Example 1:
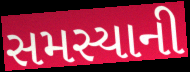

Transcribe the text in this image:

સમસ્યાની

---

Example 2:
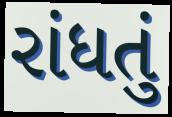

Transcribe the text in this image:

રાંધતું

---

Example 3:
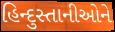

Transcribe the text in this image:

હિન્દુસ્તાનીઓને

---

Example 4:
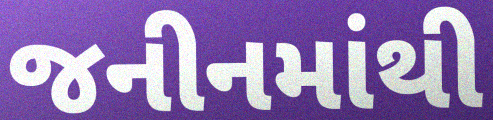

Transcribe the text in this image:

જનીનમાંથી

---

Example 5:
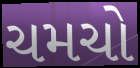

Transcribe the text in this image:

ચમચો